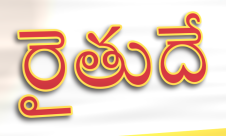
రైతుదే